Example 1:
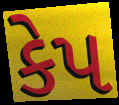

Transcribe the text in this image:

કેપ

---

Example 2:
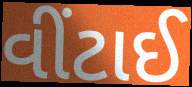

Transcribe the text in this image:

વીંટાઈ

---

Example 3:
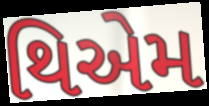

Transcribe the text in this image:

થિએમ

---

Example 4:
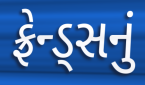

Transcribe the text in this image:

ફ્રેન્ડ્સનું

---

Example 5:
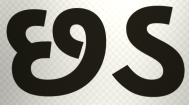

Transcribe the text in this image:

છડ